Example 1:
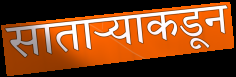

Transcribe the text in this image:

साताऱ्याकडून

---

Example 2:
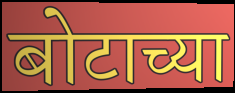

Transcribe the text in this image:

बोटाच्या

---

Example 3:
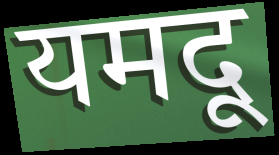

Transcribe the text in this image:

यमदू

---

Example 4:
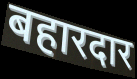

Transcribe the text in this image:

बहारदार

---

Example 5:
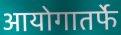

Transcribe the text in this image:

आयोगातर्फे